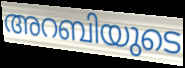
അറബിയുടെ